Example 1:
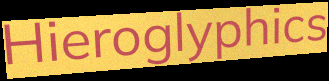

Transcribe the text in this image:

Hieroglyphics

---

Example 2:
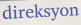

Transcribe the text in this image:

direksyon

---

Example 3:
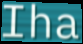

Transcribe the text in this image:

Iha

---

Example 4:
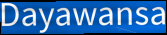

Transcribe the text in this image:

Dayawansa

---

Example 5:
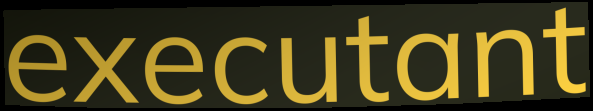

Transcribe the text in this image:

executant